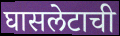
घासलेटाची